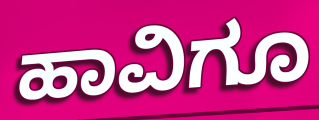
ಹಾವಿಗೂ